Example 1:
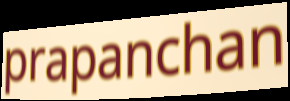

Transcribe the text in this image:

prapanchan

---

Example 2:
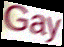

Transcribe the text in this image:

Gay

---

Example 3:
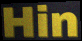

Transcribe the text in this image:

Hin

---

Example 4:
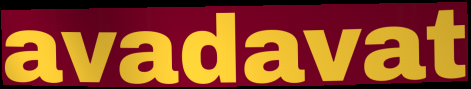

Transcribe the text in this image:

avadavat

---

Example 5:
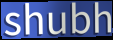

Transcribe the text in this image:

shubh